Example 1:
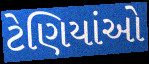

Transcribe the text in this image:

ટેણિયાંઓ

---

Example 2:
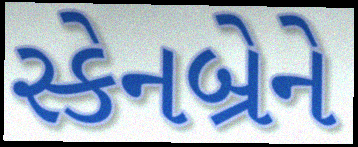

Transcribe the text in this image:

સ્કેનબ્રેને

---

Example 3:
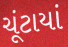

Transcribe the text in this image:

ચૂંટાયાં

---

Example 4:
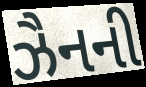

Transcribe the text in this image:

ઝૈનની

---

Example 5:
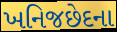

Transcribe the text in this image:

ખનિજછેદના